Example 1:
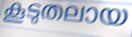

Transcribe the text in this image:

കൂടുതലായ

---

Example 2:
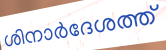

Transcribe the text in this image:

ശിനാർദേശത്ത്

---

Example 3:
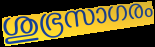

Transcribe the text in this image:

ശുഭ്രസാഗരം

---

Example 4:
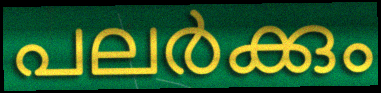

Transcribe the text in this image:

പലർക്കും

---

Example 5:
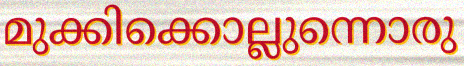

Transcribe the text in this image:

മുക്കിക്കൊല്ലുന്നൊരു